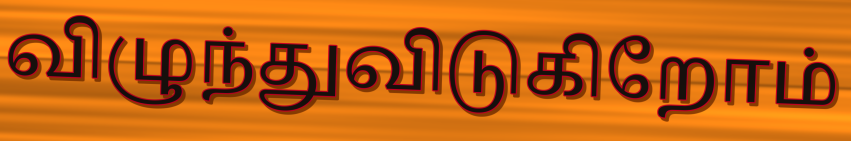
விழுந்துவிடுகிறோம்